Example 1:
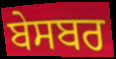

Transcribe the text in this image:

ਬੇਸਬਰ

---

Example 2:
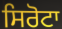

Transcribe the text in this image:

ਸਿਰੋਟਾ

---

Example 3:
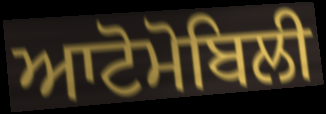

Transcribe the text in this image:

ਆਟੋਮੋਬਿਲੀ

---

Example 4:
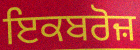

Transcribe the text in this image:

ਇਕਬਰੋਜ਼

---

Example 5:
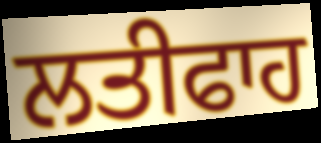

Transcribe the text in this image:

ਲਤੀਫਾਹ